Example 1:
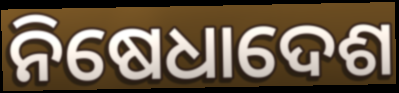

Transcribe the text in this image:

ନିଷେଧାଦେଶ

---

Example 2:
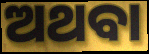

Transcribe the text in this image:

ଅଥବା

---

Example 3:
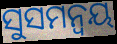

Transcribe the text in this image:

ସୁସମନ୍ଵୟ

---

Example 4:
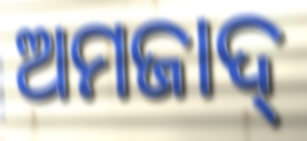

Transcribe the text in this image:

ଅମଜାଦ୍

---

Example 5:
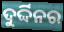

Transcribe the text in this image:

ଦୁର୍ଦ୍ଦିନର